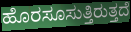
ಹೊರಸೂಸುತ್ತಿರುತ್ತದೆ